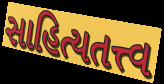
સાહિત્યતત્ત્વ